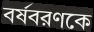
বর্ষবরণকে